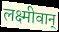
लक्ष्मीवान्